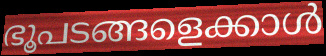
ഭൂപടങ്ങളെക്കാൾ